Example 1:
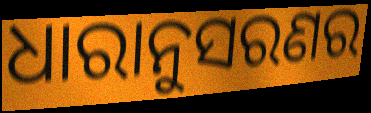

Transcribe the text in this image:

ଧାରାନୁସରଣର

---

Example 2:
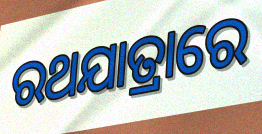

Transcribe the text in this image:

ରଥଯାତ୍ରାରେ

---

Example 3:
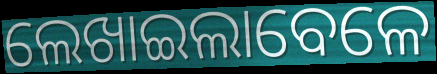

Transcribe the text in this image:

ଲେଖାଇଲାବେଳେ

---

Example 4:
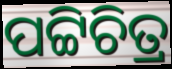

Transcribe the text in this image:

ପଟ୍ଟିଚିତ୍ର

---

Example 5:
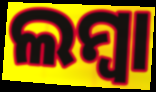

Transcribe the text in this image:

ଲମ୍ବା